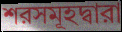
শরসমূহদ্বারা